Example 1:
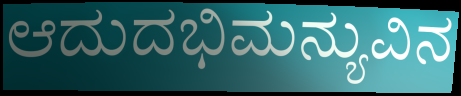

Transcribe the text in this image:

ಆದುದಭಿಮನ್ಯುವಿನ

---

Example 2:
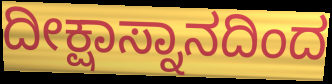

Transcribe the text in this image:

ದೀಕ್ಷಾಸ್ನಾನದಿಂದ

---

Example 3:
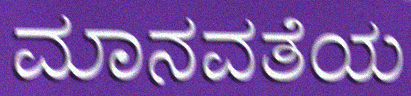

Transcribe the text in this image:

ಮಾನವತೆಯ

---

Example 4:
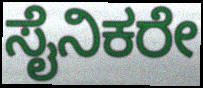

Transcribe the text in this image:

ಸೈನಿಕರೇ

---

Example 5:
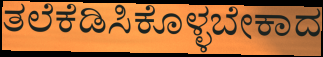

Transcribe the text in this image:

ತಲೆಕೆಡಿಸಿಕೊಳ್ಳಬೇಕಾದ